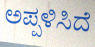
ಅಪ್ಪಳಿಸಿದೆ